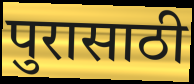
पुरासाठी